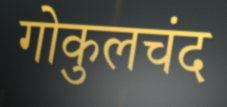
गोकुलचंद